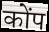
कोंप